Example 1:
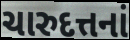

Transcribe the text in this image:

ચારુદત્તનાં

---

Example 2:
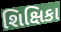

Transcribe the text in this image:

શિક્ષિકા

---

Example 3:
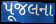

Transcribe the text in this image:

પૂજલના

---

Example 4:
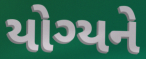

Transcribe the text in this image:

યોગ્યને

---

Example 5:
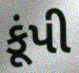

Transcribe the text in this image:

કૂંપી